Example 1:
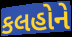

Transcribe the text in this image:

કલહોને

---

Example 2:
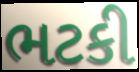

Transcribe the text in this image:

ભટકી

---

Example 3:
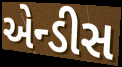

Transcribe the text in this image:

એન્ડીસ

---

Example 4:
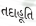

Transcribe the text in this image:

તદાહૂતિ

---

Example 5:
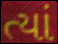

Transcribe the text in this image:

ત્‍યાં